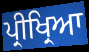
ਪ੍ਰੀਖ੍ਰਿਆ